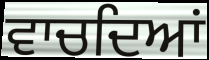
ਵਾਚਦਿਆਂ